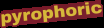
pyrophoric